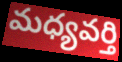
మధ్యవర్తి